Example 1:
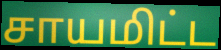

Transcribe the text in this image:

சாயமிட்ட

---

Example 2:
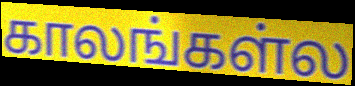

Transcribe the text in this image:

காலங்கள்ல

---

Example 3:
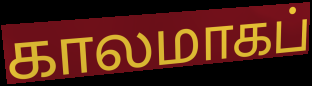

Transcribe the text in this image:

காலமாகப்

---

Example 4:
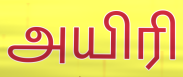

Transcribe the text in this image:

அயிரி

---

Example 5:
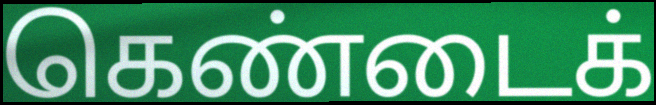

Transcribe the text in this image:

கெண்டைக்